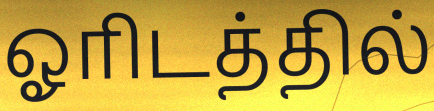
ஓரிடத்தில்